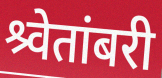
श्र्वेतांबरी